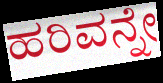
ಹರಿವನ್ನೇ